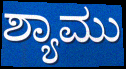
ಶ್ಯಾಮು